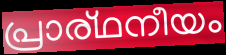
പ്രാര്ഥനീയം